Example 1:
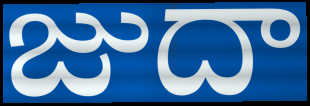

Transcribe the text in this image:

జుదా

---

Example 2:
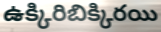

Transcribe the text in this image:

ఉక్కిరిబిక్కిరయి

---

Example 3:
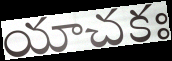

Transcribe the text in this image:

యాచకః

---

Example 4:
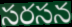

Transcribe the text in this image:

సరసన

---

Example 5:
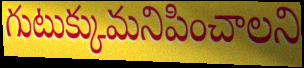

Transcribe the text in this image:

గుటుక్కుమనిపించాలని